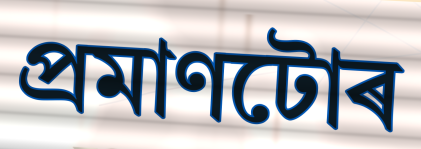
প্ৰমাণটোৰ